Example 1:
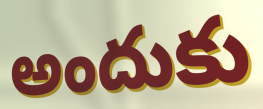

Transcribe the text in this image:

అందుకు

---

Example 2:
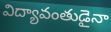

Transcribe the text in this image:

విద్యావంతుడైనా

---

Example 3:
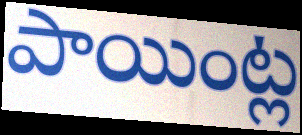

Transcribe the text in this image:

పాయింట్ల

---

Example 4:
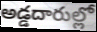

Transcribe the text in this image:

అడ్డదారుల్లో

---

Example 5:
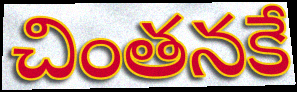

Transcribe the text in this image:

చింతనకే